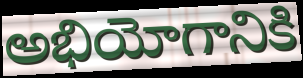
అభియోగానికి